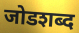
जोडशब्द